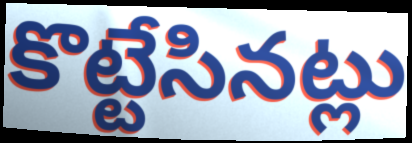
కొట్టేసినట్లు